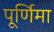
पूर्णिमा